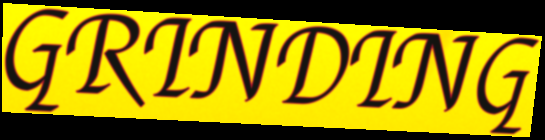
GRINDING